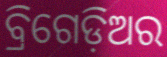
ବ୍ରିଗେଡ଼ିଅର